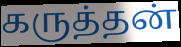
கருத்தன்